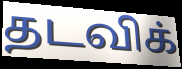
தடவிக்